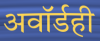
अवॉर्डही